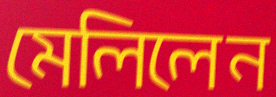
মেলিলেন